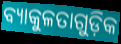
ବ୍ୟାକୁଳତାଗୁଡ଼ିକ